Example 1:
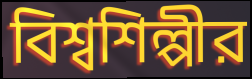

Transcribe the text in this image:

বিশ্বশিল্পীর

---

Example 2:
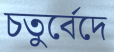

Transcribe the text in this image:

চতুর্বেদে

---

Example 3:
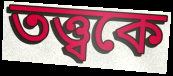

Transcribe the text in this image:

তত্ত্বকে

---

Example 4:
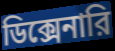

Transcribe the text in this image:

ডিক্সেনারি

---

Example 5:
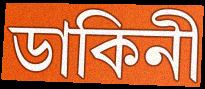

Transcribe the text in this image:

ডাকিনী